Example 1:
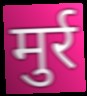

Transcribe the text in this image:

मुर्र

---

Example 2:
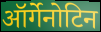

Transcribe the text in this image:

ऑर्गेनोटिन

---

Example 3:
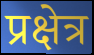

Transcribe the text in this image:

प्रक्षेत्र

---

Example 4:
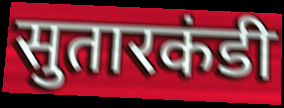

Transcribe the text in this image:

सुतारकंडी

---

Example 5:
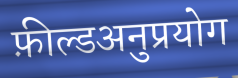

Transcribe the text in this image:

फ़ील्डअनुप्रयोग